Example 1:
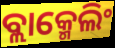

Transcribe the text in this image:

ବ୍ଲାକ୍ମେଲିଂ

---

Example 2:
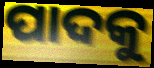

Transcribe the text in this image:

ପାଦକୁ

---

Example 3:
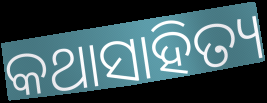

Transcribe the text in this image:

କଥାସାହିତ୍ୟ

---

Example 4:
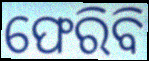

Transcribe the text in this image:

ଫେରିବି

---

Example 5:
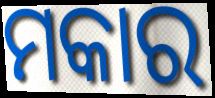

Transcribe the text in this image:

ମକାର